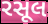
રસૂલ